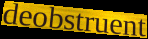
deobstruent